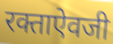
रक्ताऐवजी